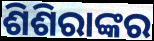
ଶିଶିରାଙ୍କର